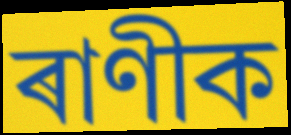
ৰাণীক